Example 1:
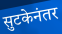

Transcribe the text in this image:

सुटकेनंतर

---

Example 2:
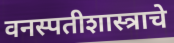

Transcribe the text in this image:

वनस्पतीशास्त्राचे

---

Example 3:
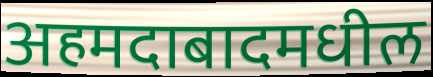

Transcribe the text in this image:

अहमदाबादमधील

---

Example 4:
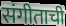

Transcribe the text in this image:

संगीताची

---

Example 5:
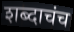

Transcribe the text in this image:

शब्दाचंच